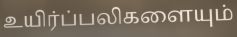
உயிர்ப்பலிகளையும்